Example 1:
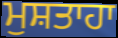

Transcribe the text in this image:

ਮੁਸ਼ਤਾਹਾ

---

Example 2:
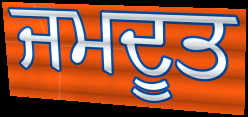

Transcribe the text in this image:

ਜਮਦੂਤ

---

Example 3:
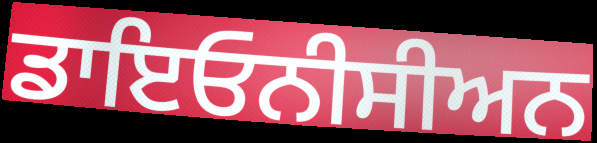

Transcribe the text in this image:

ਡਾਇਓਨੀਸੀਅਨ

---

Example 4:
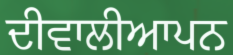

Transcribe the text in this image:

ਦੀਵਾਲੀਆਪਨ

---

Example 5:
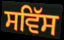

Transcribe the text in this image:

ਸਵਿੱਸ